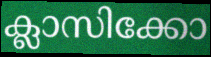
ക്ലാസിക്കോ